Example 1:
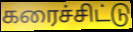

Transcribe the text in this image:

கரைச்சிட்டு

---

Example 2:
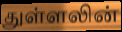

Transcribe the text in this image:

துள்ளலின்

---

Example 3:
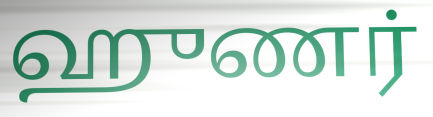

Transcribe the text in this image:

ஹுணர்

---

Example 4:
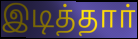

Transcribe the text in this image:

இடித்தார்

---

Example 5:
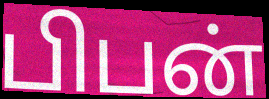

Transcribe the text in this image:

பிபன்